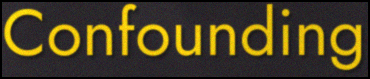
Confounding